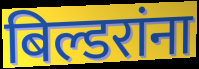
बिल्डरांना